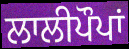
ਲਾਲੀਪੌਪਾਂ